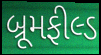
બ્રૂમફીલ્ડ